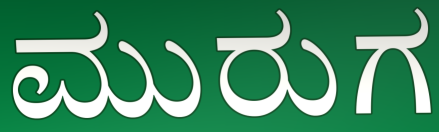
ಮುರುಗ